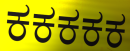
ಕಕಕಕಕ